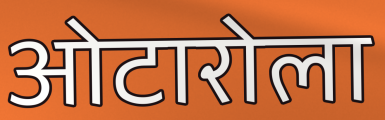
ओटारोला